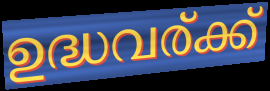
ഉദ്ധവര്ക്ക്